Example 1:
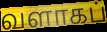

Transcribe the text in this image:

வளாகப்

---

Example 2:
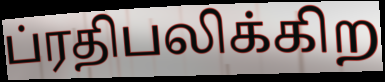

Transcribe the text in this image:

ப்ரதிபலிக்கிற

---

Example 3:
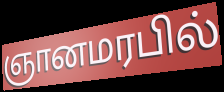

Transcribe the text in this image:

ஞானமரபில்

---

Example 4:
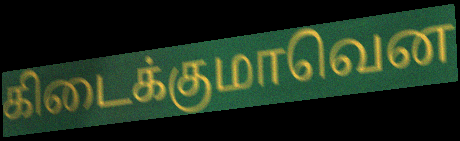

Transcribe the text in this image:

கிடைக்குமாவென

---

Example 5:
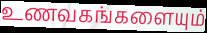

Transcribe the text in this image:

உணவகங்களையும்